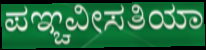
ಪಞ್ಚವೀಸತಿಯಾ